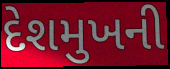
દેશમુખની